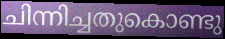
ചിന്നിച്ചതുകൊണ്ടു